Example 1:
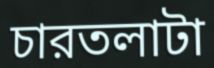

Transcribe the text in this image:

চারতলাটা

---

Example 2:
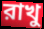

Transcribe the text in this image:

রাখু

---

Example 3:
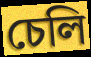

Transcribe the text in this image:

চেলি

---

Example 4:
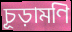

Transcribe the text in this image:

চূড়ামণি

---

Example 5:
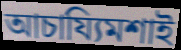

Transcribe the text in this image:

আচায্যিমশাই